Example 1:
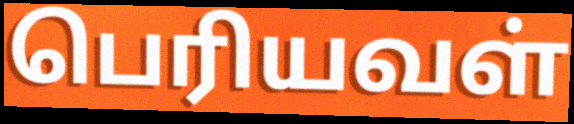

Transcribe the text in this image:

பெரியவள்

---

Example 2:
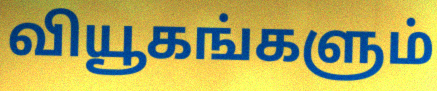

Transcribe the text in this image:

வியூகங்களும்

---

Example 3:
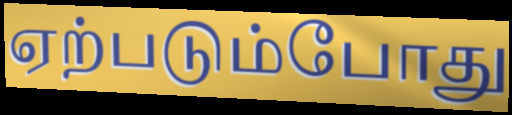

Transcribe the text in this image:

ஏற்படும்போது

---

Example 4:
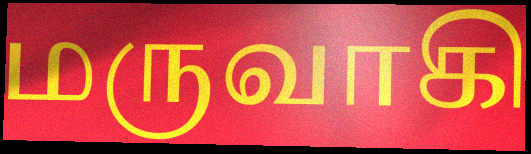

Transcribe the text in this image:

மருவாகி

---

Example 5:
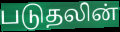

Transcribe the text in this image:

படுதலின்